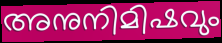
അനുനിമിഷവും